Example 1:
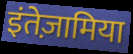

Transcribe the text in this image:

इंतेज़ामिया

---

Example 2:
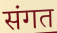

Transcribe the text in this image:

संगत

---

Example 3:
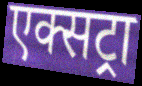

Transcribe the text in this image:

एक्सट्रा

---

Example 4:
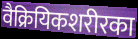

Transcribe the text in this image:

वैक्रियिकशरीरका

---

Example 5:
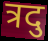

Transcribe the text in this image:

त्रदु